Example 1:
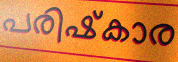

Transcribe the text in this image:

പരിഷ്‌കാര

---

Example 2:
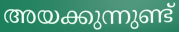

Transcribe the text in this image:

അയക്കുന്നുണ്ട്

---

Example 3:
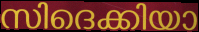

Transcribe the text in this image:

സിദെക്കിയാ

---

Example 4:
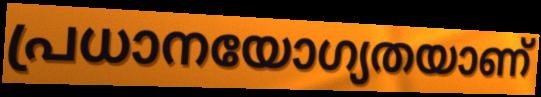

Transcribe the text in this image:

പ്രധാനയോഗ്യതയാണ്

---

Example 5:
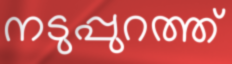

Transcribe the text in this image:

നടുപ്പുറത്ത്